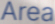
Area